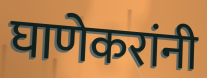
घाणेकरांनी